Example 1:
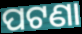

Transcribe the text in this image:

ପଟଣା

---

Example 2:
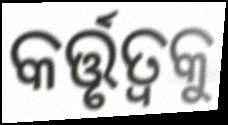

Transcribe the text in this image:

କର୍ତ୍ତୃତ୍ୱକୁ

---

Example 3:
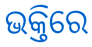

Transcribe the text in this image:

ଭକ୍ତିରେ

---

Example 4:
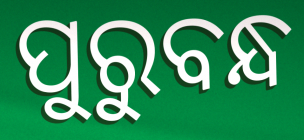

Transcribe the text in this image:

ପୁରୁବନ୍ଧ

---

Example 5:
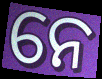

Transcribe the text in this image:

ନେ